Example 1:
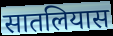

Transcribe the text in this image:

सातलियास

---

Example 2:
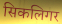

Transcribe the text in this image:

सिकलिगर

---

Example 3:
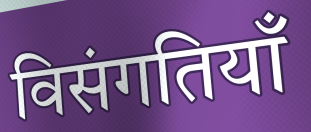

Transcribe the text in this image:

विसंगतियाँ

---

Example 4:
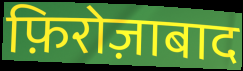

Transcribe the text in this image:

फ़िरोज़ाबाद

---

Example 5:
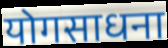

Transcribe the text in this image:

योगसाधना